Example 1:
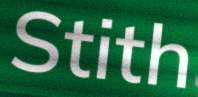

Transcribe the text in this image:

Stith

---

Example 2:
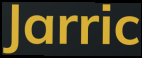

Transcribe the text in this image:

Jarric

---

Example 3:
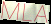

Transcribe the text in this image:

MLA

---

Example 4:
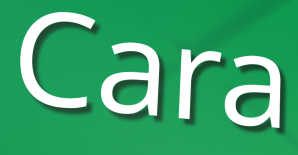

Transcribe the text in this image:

Cara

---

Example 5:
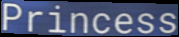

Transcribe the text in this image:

Princess